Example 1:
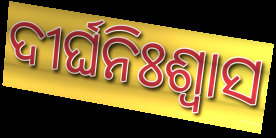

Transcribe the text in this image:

ଦୀର୍ଘନିଃଶ୍ବାସ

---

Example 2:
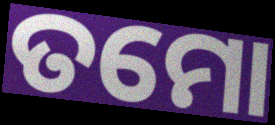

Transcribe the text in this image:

ତମୋ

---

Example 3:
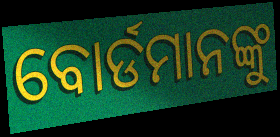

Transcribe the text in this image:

ବୋର୍ଡମାନଙ୍କୁ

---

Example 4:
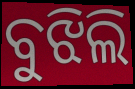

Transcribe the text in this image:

ବୁଝିଲି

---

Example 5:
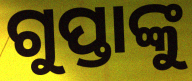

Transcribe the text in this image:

ଗୁପ୍ତାଙ୍କୁ